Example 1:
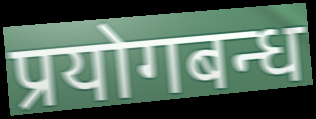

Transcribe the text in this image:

प्रयोगबन्ध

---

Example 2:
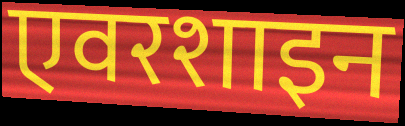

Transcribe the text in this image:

एवरशाइन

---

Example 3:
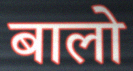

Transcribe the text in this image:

बालो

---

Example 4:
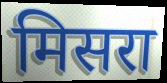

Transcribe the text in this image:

मिसरा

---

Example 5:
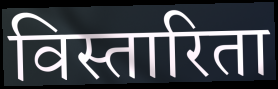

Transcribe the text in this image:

विस्तारिता